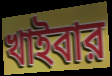
খাইবার